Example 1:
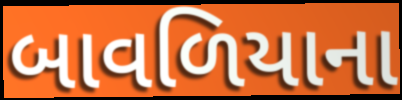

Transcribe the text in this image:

બાવળિયાના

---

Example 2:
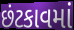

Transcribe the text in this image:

છંટકાવમાં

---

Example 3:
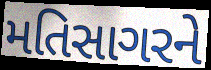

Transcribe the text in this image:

મતિસાગરને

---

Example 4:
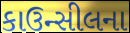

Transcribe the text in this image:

કાઉન્સીલના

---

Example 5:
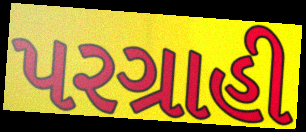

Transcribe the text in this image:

પરગ્રાહી